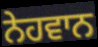
ਨੇਹਵਾਨ